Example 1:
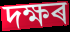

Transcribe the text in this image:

দক্ষৰ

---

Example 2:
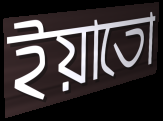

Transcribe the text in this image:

ইয়াতো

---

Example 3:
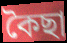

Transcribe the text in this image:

কৈছা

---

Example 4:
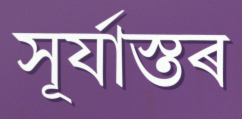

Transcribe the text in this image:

সূৰ্যাস্তৰ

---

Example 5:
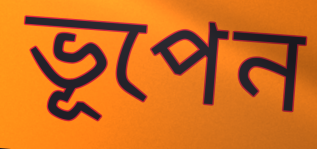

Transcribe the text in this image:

ভূপেন